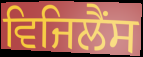
ਵਿਜਿਲੈਂਸ